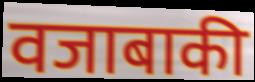
वजाबाकी